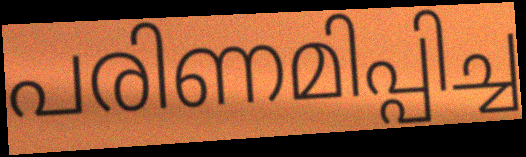
പരിണമിപ്പിച്ച